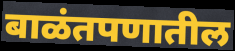
बाळंतपणातील